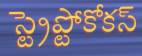
స్ట్రెప్టోకోకస్